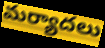
మర్యాదలు